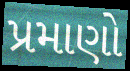
પ્રમાણો